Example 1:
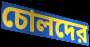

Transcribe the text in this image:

চোলদের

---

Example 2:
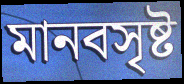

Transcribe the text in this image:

মানবসৃষ্ট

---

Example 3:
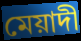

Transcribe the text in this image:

মেয়াদী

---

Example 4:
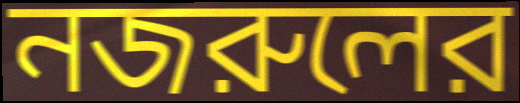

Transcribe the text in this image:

নজরুলের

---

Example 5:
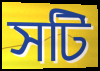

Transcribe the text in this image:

সটি